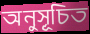
অনুসূচিত